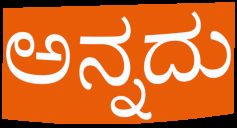
ಅನ್ನದು